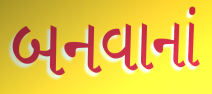
બનવાનાં